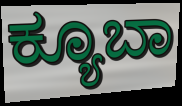
ಕ್ಯೂಬಾ